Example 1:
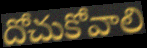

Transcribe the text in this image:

దోచుకోవాలి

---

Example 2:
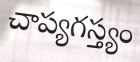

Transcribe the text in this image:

చాప్యగస్త్యం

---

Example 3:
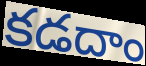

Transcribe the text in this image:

కడదాం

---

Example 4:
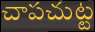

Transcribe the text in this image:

చాపచుట్ట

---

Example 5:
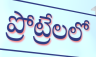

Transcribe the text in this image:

ప్రోట్రేలలో